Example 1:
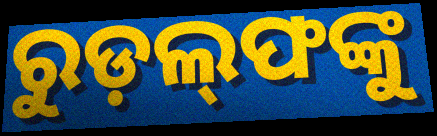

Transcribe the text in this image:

ରୁଡ଼ଲ୍‍ଫଙ୍କୁ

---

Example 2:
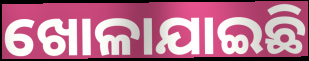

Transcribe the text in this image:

ଖୋଳାଯାଇଛି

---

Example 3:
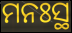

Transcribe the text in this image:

ମନଃସ୍ଥ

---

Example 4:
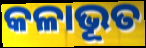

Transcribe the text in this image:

କଳାଭୂତ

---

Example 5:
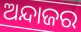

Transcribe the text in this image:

ଅନ୍ଦାଜର